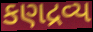
કણદ્રવ્ય